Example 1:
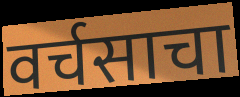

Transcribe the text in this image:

वर्चसाचा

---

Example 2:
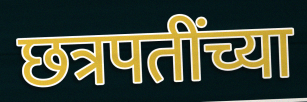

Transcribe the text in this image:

छत्रपतींच्या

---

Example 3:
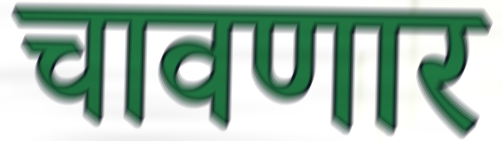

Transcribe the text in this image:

चावणार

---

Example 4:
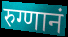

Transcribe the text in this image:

रुग्णानं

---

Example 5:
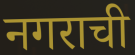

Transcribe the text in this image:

नगराची